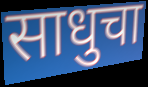
साधुचा